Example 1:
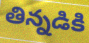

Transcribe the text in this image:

తిన్నడికి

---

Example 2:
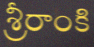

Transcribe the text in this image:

శ్రీరాంకి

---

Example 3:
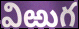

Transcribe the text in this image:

విఱుగ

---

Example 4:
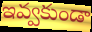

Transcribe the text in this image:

ఇవ్వకుండా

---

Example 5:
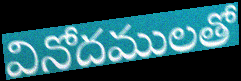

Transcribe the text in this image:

వినోదములతో